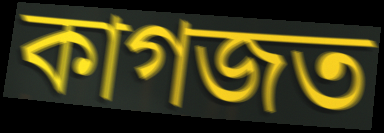
কাগজত